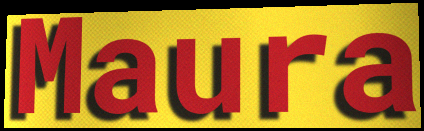
Maura